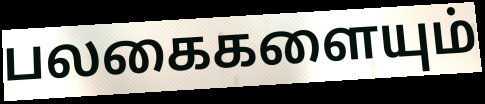
பலகைகளையும்